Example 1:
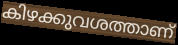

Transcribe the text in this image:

കിഴക്കുവശത്താണ്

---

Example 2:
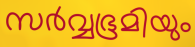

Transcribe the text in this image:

സർവ്വഭൂമിയും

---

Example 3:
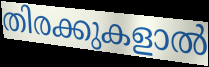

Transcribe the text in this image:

തിരക്കുകളാൽ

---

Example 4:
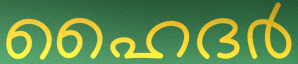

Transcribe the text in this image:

ഹൈദർ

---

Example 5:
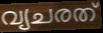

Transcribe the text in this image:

വ്യചരത്